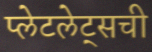
प्लेटलेट्‌सची